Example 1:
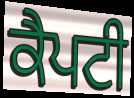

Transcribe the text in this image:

ਕੈਪਟੀ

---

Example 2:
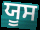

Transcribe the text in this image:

ਯੂਸ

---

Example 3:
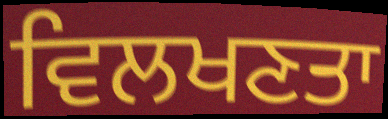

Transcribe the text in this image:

ਵਿਲਖਣਤਾ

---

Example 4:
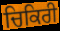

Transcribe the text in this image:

ਚਿਕਿਰੀ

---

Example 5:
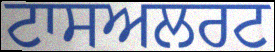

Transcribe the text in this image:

ਟਾਸਅਲਰਟ